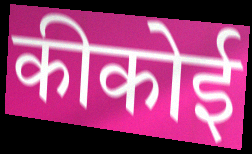
कीकोई